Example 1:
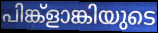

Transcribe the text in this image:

പിങ്ക്ളാങ്കിയുടെ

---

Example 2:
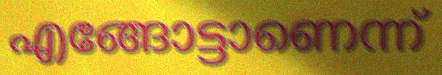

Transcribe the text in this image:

എങ്ങോട്ടാണെന്ന്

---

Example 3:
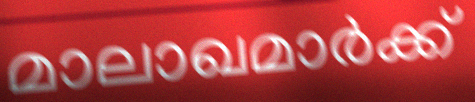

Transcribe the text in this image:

മാലാഖമാർക്ക്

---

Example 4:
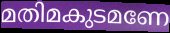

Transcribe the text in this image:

മതിമകുടമണേ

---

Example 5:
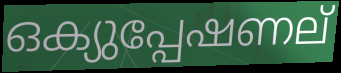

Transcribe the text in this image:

ഒക്യുപ്പേഷണല്